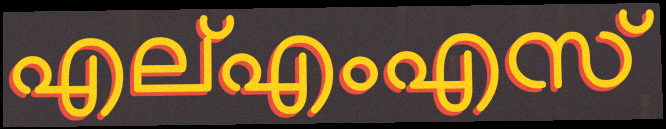
എല്എംഎസ്